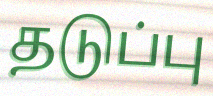
தடுப்பு